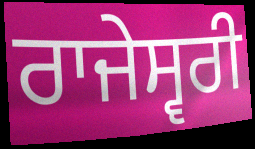
ਰਾਜੇਸ੍ਵਰੀ